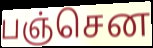
பஞ்சென